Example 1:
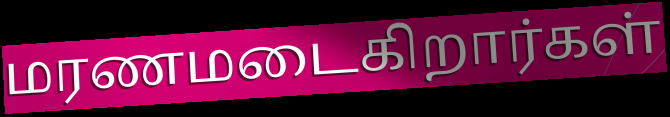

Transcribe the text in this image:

மரணமடைகிறார்கள்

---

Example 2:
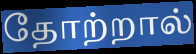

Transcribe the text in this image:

தோற்றால்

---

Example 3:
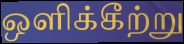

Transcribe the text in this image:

ஒளிக்கீற்று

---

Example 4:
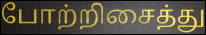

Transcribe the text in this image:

போற்றிசைத்து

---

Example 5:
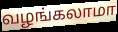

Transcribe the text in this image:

வழங்கலாமா